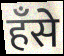
हँसे